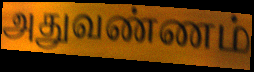
அதுவண்ணம்